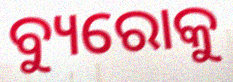
ବ୍ୟୁରୋକୁ